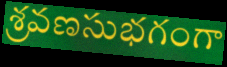
శ్రవణసుభగంగా